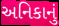
અનિકાનું